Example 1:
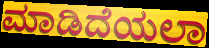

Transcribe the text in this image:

ಮಾಡಿದೆಯಲಾ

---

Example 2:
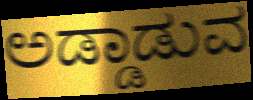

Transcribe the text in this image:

ಅಡ್ಡಾಡುವ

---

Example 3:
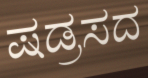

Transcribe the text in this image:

ಷಡ್ರಸದ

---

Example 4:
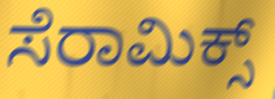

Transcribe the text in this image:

ಸೆರಾಮಿಕ್ಸ್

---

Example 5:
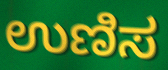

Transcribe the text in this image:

ಉಣಿಸ